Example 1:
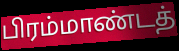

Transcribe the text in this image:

பிரம்மாண்டத்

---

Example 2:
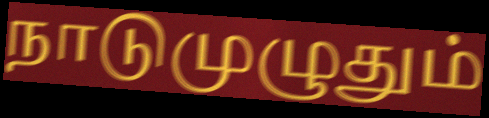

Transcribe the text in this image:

நாடுமுழுதும்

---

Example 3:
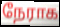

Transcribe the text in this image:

நேராக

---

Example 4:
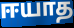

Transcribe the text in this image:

ஈயாத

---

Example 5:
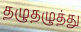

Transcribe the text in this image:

தழுதழுத்து